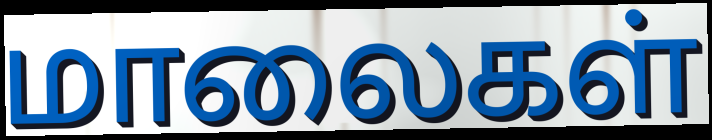
மாலைகள்